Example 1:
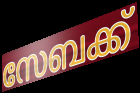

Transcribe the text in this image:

സേബക്ക്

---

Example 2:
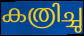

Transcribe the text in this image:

കത്രിച്ചു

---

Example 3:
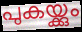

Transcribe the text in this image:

പുകയ്ക്കും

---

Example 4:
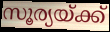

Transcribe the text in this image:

സൂര്യയ്ക്ക്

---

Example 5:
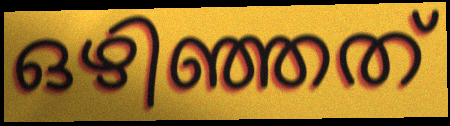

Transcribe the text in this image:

ഒഴിഞ്ഞത്